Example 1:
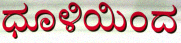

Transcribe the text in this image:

ಧೂಳಿಯಿಂದ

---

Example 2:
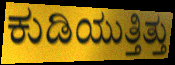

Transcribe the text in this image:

ಕುಡಿಯುತ್ತಿತ್ತು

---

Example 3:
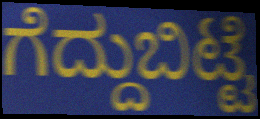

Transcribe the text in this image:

ಗೆದ್ದುಬಿಟ್ಟೆ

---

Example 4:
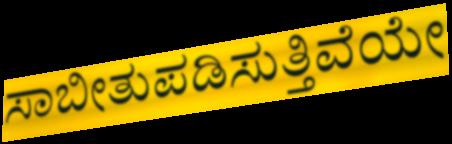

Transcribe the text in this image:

ಸಾಬೀತುಪಡಿಸುತ್ತಿವೆಯೇ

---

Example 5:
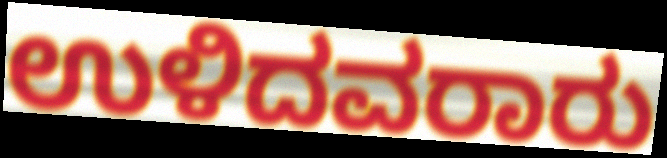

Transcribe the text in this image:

ಉಳಿದವರಾರು